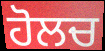
ਹੋਲਚ